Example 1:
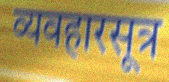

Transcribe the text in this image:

व्यवहारसूत्र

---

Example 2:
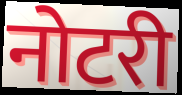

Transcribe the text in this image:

नोटरी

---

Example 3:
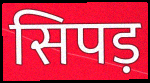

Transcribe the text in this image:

सिपड़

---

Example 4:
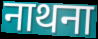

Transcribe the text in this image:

नाथना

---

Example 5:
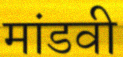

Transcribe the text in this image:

मांडवी